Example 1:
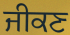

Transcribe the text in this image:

ਜੀਕਣ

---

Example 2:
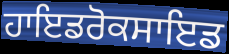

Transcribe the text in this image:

ਹਾਇਡਰੋਕਸਾਇਡ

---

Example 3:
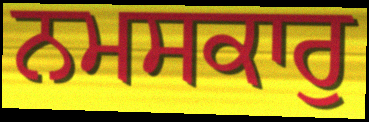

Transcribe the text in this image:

ਨਮਸਕਾਰੁ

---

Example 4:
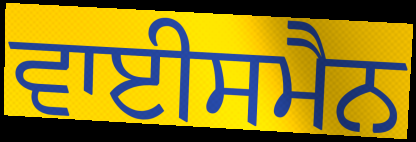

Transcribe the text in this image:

ਵਾਈਸਮੈਨ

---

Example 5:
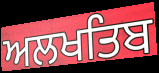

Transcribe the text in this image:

ਅਲਖਤਿਬ